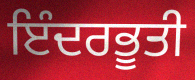
ਇੰਦਰਭੂਤੀ